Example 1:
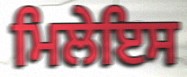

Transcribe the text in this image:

ਮਿਲੇਇਸ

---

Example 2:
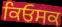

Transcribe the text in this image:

ਕਿਓਸਕ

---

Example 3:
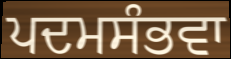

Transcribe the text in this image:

ਪਦਮਸੰਭਵਾ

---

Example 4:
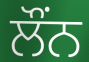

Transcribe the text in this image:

ਲੌਂਨ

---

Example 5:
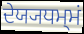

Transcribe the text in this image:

ਦੇਯ੍ਯਧਮ੍ਮਂ